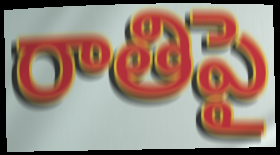
రాతిపై